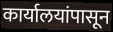
कार्यालयांपासून